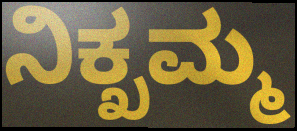
ನಿಕ್ಖಮ್ಮ